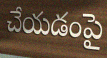
చేయడంపై